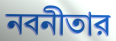
নবনীতার